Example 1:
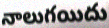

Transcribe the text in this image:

నాలుగయిదు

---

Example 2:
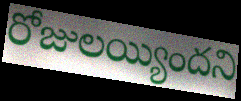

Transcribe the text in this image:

రోజులయ్యిందని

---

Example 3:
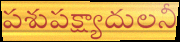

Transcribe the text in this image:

పశుపక్ష్యాదులనీ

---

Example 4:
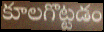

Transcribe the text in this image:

కూలగొట్టడం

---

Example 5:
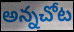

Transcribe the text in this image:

అన్నచోట